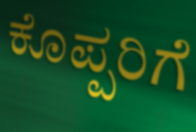
ಕೊಪ್ಪರಿಗೆ